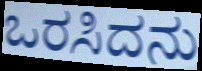
ಒರಸಿದನು